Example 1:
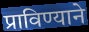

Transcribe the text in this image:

प्राविण्याने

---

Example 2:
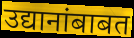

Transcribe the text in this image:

उद्यानांबाबत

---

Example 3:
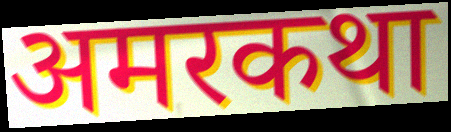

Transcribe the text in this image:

अमरकथा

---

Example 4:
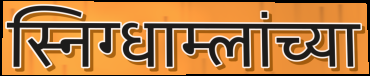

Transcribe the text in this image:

स्निग्धाम्लांच्या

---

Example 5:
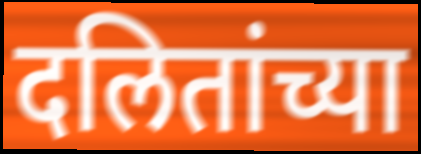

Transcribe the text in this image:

दलितांच्या